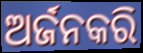
ଅର୍ଜନକରି